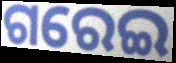
ଗରେଇ